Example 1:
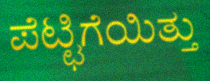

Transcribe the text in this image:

ಪೆಟ್ಟಿಗೆಯಿತ್ತು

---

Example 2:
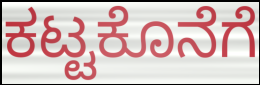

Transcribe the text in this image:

ಕಟ್ಟಕೊನೆಗೆ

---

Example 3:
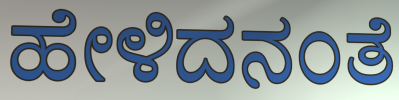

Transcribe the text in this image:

ಹೇಳಿದನಂತೆ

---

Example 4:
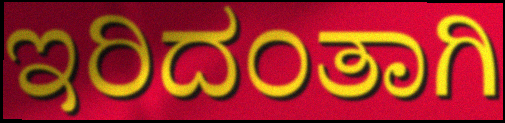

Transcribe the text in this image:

ಇರಿದಂತಾಗಿ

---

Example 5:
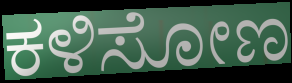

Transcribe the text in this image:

ಕಳಿಸೋಣ